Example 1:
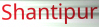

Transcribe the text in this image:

Shantipur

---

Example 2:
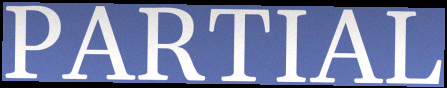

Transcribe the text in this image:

PARTIAL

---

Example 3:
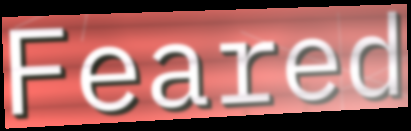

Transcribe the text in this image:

Feared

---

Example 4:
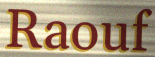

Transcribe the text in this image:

Raouf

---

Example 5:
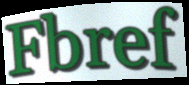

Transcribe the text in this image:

Fbref